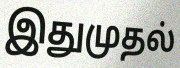
இதுமுதல்